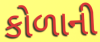
કોળાની